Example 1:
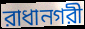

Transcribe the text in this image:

রাধানগরী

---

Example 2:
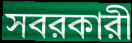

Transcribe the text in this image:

সবরকারী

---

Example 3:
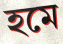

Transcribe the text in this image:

হমে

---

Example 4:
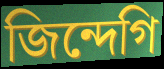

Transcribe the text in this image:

জিন্দেগি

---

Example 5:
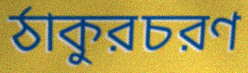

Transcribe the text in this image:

ঠাকুরচরণ